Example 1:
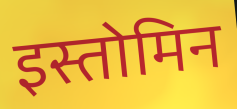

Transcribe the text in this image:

इस्तोमिन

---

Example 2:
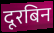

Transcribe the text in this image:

दूरबिन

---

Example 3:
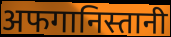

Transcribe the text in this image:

अफगानिस्तानी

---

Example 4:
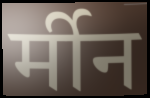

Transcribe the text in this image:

र्मीन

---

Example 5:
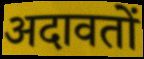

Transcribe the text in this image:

अदावतों